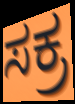
ಸಕ್ರ